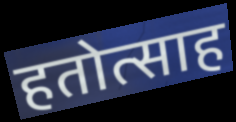
हतोत्साह